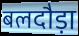
बलदौड़ा